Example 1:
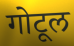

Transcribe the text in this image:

गोटूल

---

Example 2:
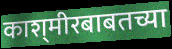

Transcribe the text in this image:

काश्मीरबाबतच्या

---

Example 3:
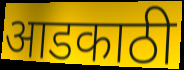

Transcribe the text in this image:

आडकाठी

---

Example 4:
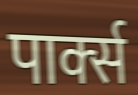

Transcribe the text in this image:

पार्क्‍स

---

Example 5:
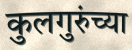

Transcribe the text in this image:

कुलगुरुंच्या